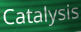
Catalysis